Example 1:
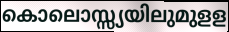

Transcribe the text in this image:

കൊലൊസ്സ്യയിലുമുളള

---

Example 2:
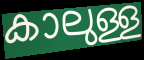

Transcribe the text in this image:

കാലുള്ള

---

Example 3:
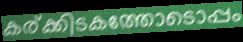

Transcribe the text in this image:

കര്ക്കിടകത്തോടൊപ്പം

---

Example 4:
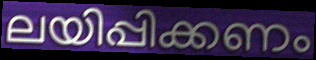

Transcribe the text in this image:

ലയിപ്പിക്കണം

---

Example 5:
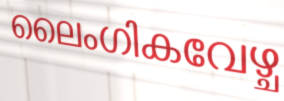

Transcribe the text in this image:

ലൈംഗികവേഴ്ച